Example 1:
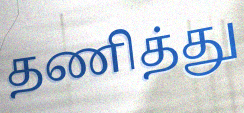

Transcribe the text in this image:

தணித்து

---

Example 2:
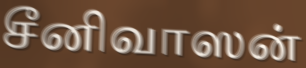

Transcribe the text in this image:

சீனிவாஸன்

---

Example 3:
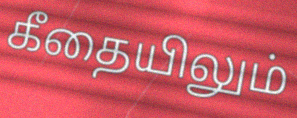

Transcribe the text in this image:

கீதையிலும்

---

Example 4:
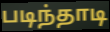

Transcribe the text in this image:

படிந்தாடி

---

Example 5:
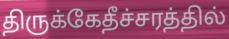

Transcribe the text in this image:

திருக்கேதீச்சரத்தில்